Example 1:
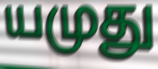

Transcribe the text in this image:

யமுது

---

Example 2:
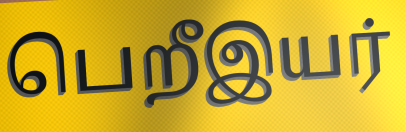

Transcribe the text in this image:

பெறீஇயர்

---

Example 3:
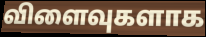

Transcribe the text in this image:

விளைவுகளாக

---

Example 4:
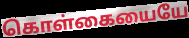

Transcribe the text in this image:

கொள்கையையே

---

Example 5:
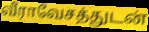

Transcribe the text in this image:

வீராவேசத்துடன்